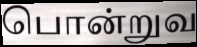
பொன்றுவ